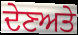
ਦੇਣਅਤੇ